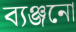
ব্যঞ্জনো